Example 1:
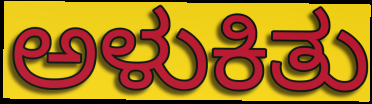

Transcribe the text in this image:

ಅಳುಕಿತು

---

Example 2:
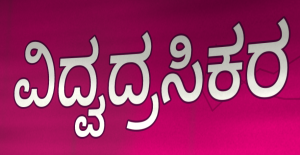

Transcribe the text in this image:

ವಿದ್ವದ್ರಸಿಕರ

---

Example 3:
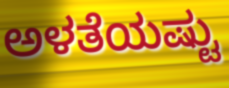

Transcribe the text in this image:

ಅಳತೆಯಷ್ಟು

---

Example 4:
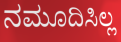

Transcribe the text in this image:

ನಮೂದಿಸಿಲ್ಲ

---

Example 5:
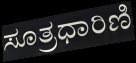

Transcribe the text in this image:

ಸೂತ್ರಧಾರಿಣಿ